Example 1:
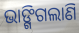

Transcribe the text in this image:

ଭାଙ୍ଗିଗଲାଣି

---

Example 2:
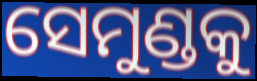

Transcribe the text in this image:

ସେମୁଣ୍ଡକୁ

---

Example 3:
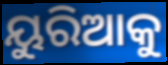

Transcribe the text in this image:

ୟୁରିଆକୁ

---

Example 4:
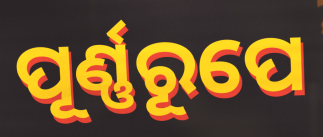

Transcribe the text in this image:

ପୂର୍ଣ୍ଣରୂପେ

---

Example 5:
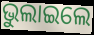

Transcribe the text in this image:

ଭୁଲାଇଲେ